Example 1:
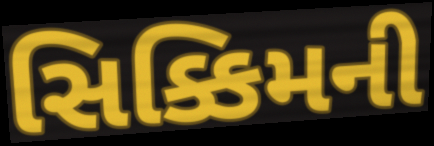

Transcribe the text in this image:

સિક્કિમની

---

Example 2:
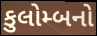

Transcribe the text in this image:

કુલોમ્બનો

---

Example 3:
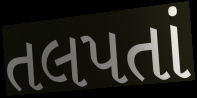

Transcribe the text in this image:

તલપતાં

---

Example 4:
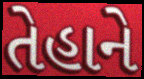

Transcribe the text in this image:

તેહાને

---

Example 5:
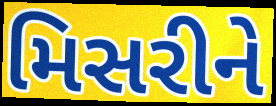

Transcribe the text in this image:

મિસરીને